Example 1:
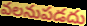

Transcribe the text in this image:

వలనుపడదు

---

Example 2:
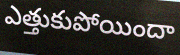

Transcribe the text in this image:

ఎత్తుకుపోయిందా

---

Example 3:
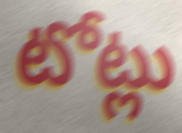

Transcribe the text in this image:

టోట్లు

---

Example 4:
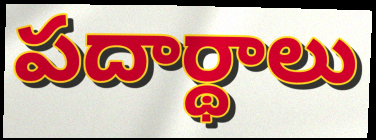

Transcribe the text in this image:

పదార్థాలు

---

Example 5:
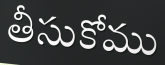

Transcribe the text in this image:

తీసుకోము